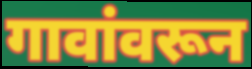
गावांवरून